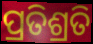
ପ୍ରତିଶ୍ରତି